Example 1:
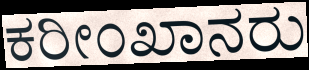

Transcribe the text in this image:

ಕರೀಂಖಾನರು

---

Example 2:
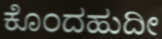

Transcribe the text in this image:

ಕೊಂದಹುದೀ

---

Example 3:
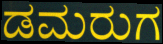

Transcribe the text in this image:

ಡಮರುಗ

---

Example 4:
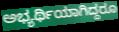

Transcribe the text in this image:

ಅಭ್ಯರ್ಥಿಯಾಗಿದ್ದರೂ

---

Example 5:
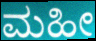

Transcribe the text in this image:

ಮಹೀ